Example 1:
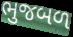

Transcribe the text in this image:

ભુજબળ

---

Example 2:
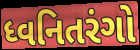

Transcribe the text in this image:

ધ્વનિતરંગો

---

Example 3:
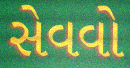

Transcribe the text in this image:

સેવવો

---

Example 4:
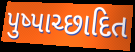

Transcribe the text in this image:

પુષ્પાચ્છાદિત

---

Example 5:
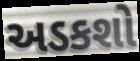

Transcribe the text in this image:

અડકશો